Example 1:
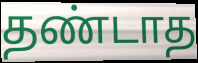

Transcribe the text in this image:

தண்டாத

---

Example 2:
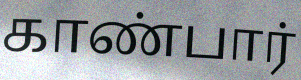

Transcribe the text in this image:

காண்பார்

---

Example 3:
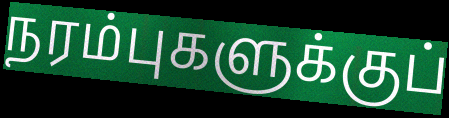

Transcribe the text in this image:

நரம்புகளுக்குப்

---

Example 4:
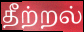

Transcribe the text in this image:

தீற்றல்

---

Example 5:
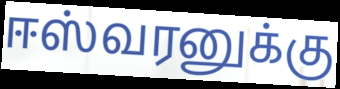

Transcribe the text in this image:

ஈஸ்வரனுக்கு